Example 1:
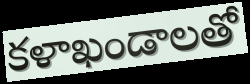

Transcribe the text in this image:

కళాఖండాలతో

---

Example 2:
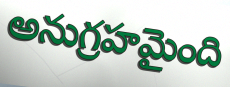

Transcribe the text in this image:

అనుగ్రహమైంది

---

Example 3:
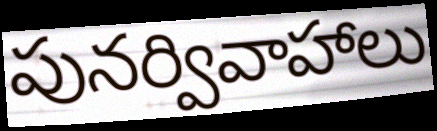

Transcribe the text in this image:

పునర్వివాహాలు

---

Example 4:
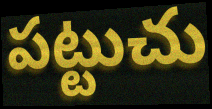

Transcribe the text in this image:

పట్టుచు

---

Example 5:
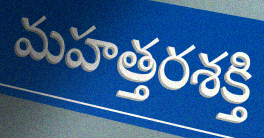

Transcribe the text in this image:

మహత్తరశక్తి